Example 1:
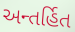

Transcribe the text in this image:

અન્તર્હિત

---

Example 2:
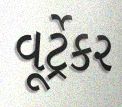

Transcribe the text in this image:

વૂર્ટ્રેકર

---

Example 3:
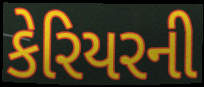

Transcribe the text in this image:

કેરિયરની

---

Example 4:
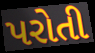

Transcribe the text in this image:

પરોતી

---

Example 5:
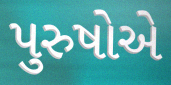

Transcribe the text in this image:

પુરુષોએ